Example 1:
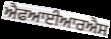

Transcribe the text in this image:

ਐਫਆਈਆਰਐਸ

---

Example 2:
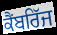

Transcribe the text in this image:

ਕੈਂਬਰਿੱਜ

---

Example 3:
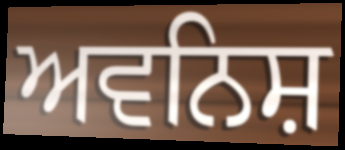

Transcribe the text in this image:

ਅਵਨਿਸ਼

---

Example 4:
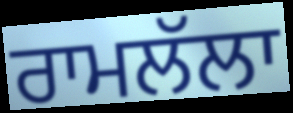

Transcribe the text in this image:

ਰਾਮਲੱਲਾ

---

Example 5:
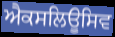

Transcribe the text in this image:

ਐਕਸਲਿਊਸਿਵ